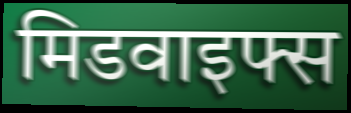
मिडवाइफ्स